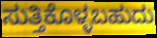
ಸುತ್ತಿಕೊಳ್ಳಬಹುದು